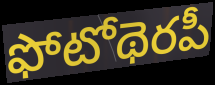
ఫోటోథెరపీ